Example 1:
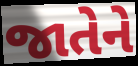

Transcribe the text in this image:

જાતેને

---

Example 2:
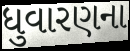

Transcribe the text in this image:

ધુવારણના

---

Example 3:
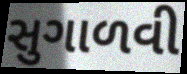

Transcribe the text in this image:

સુગાળવી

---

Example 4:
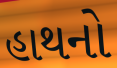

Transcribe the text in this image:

હાથનો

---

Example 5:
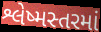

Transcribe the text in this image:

શ્લેષ્મસ્તરમાં